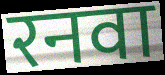
रनवा